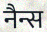
नैन्स